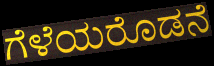
ಗೆಳೆಯರೊಡನೆ